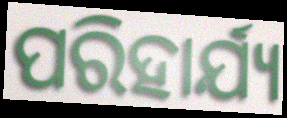
ପରିହାର୍ଯ୍ୟ